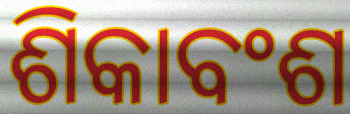
ଶିକାବଂଶ